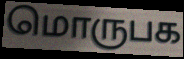
மொருபக